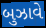
બુઝાવે